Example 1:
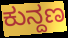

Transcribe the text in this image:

ಕುನ್ದಣ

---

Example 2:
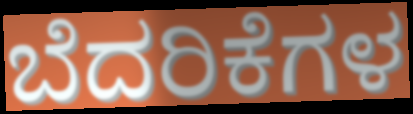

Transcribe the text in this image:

ಬೆದರಿಕೆಗಳ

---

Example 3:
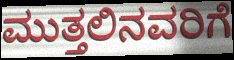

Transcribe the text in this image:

ಮುತ್ತಲಿನವರಿಗೆ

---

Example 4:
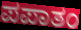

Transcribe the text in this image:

ಪಪಾತಂ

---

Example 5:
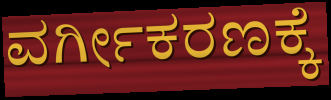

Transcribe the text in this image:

ವರ್ಗೀಕರಣಕ್ಕೆ